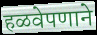
हळवेपणाने